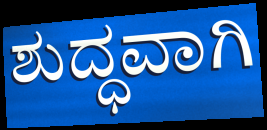
ಶುದ್ಧವಾಗಿ